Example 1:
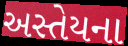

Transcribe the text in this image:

અસ્તેયના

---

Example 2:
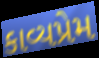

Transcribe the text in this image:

કાવ્યપ્રેમ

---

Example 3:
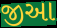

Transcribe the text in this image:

જીઆ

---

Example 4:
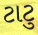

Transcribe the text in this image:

ટાટુ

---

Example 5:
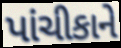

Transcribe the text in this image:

પાંચીકાને